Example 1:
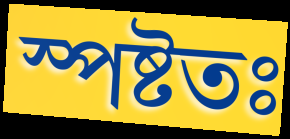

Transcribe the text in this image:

স্পষ্টতঃ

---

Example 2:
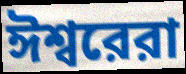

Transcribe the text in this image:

ঈশ্বরেরা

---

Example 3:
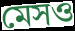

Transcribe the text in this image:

মেসও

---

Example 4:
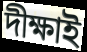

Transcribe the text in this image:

দীক্ষাই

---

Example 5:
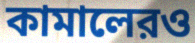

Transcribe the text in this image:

কামালেরও